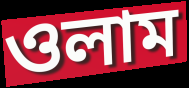
ওলাম